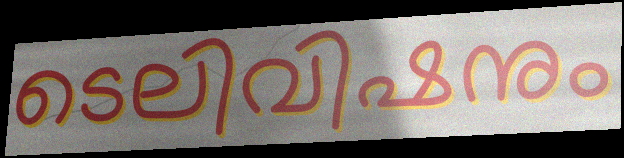
ടെലിവിഷനും